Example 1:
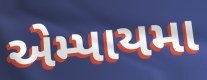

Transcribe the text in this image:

એમ્પાયમા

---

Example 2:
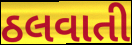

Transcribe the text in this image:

ઠલવાતી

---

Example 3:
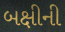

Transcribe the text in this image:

બક્ષીની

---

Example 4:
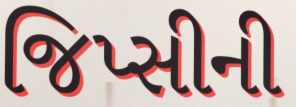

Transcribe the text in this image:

જિપ્સીની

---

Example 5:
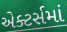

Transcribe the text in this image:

એક્ટર્સમાં